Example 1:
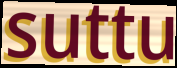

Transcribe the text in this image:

suttu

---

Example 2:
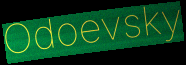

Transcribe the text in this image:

Odoevsky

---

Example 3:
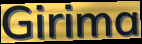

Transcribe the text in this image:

Girima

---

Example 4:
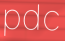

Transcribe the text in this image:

pdc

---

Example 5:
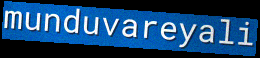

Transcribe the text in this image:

munduvareyali